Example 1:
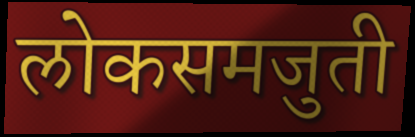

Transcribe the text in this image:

लोकसमजुती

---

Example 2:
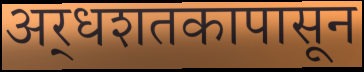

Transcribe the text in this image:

अर्धशतकापासून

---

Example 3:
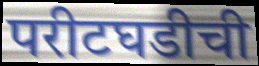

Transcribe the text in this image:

परीटघडीची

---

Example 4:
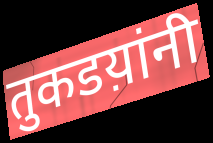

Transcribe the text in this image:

तुकडय़ांनी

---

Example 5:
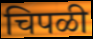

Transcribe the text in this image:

चिपळी